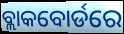
ବ୍ଲାକବୋର୍ଡରେ